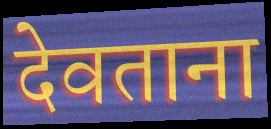
देवताना